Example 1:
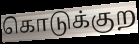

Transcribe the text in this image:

கொடுக்குற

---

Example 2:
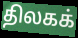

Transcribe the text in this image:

திலகக்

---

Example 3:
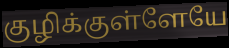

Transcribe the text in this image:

குழிக்குள்ளேயே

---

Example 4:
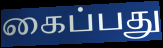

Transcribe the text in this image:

கைப்பது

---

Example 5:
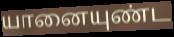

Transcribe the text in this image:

யானையுண்ட